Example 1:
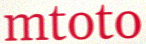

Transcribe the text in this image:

mtoto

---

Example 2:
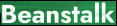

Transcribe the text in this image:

Beanstalk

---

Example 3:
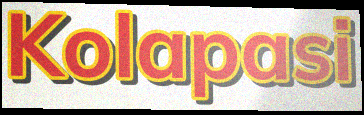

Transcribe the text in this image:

Kolapasi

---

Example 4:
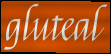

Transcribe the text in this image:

gluteal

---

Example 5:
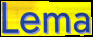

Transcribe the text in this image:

Lema